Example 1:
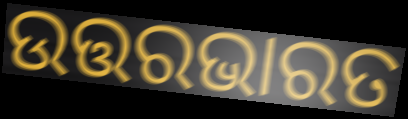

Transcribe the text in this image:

ଉତ୍ତରଭାରତ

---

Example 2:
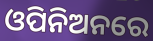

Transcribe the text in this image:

ଓପିନିଅନରେ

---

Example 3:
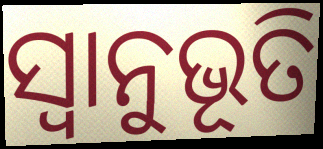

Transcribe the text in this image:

ସ୍ଵାନୁଭୂତି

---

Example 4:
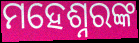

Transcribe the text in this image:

ମହେଶ୍ନରଙ୍କ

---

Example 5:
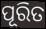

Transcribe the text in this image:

ପୂରିତ